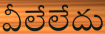
వీలేలేదు